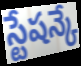
స్టేషన్కే